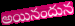
అయినందున